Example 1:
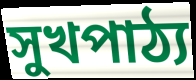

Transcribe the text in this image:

সুখপাঠ্য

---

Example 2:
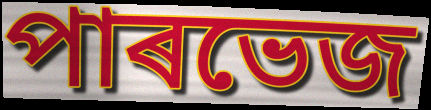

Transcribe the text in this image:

পাৰভেজ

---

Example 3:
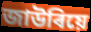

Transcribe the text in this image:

জাউৰিয়ে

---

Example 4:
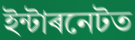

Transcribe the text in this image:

ইন্টাৰনেটত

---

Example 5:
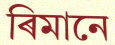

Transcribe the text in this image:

ৰিমানে